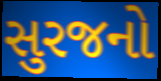
સુરજનો